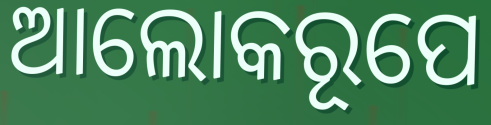
ଆଲୋକରୂପେ